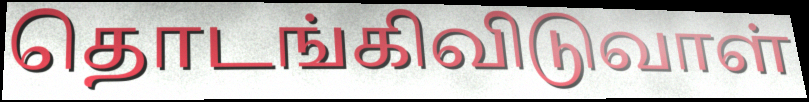
தொடங்கிவிடுவாள்